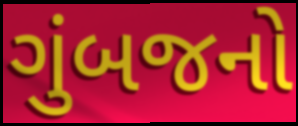
ગુંબજનો